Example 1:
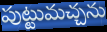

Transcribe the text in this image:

పుట్టుమచ్చను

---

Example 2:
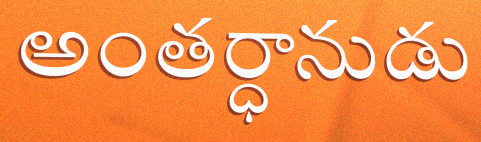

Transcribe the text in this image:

అంతర్ధానుడు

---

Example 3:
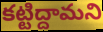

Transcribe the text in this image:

కట్టిద్దామని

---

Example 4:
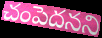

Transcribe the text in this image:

చంపెదనని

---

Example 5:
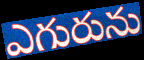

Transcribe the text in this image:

ఎగురును